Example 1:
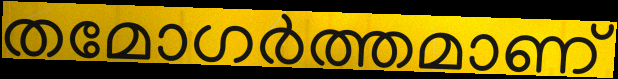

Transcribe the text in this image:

തമോഗർത്തമാണ്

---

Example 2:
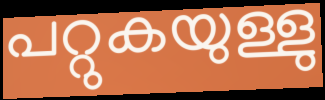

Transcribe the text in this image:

പറ്റുകയുള്ളു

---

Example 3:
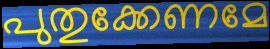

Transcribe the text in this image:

പുതുക്കേണമേ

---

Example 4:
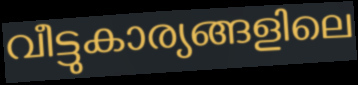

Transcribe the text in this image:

വീട്ടുകാര്യങ്ങളിലെ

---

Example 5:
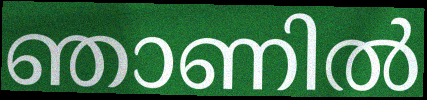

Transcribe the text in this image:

ഞാണിൽ